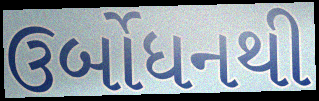
ઉર્બોધનથી